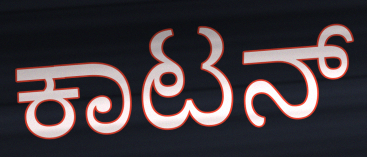
ಕಾಟನ್